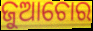
ଜୁଆଚୋର